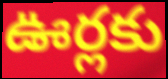
ఊర్లకు